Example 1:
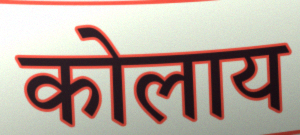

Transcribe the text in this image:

कोलाय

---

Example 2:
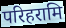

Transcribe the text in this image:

परिहरामि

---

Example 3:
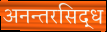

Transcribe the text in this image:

अनन्तरसिद्ध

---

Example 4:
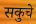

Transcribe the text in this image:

सकुचे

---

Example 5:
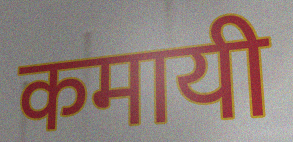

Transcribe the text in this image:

कमायी